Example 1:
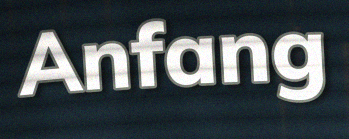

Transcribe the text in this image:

Anfang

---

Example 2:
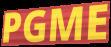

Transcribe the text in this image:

PGME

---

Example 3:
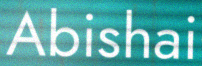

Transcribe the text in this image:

Abishai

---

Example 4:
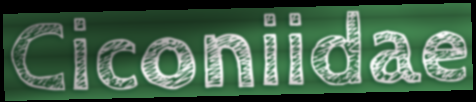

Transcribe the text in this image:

Ciconiidae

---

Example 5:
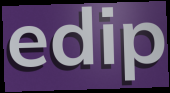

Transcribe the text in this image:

edip